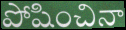
పోషించినా